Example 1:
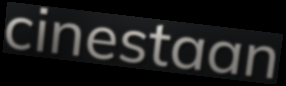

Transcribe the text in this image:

cinestaan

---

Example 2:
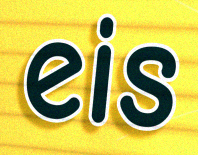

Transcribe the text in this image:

eis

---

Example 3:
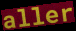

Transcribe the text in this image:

aller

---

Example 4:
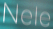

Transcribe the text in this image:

Nele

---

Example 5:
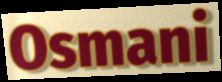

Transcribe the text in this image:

Osmani